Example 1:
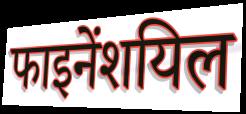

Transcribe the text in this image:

फाइनेंशयिल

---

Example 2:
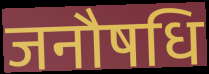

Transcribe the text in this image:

जनौषधि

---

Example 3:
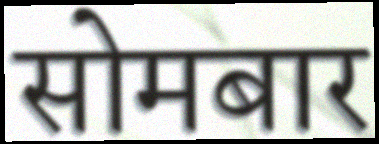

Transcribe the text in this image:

सोमबार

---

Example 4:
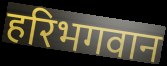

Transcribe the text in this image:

हरिभगवान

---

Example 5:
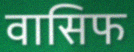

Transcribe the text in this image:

वासिफ